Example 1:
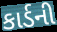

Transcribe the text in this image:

કાર્ડની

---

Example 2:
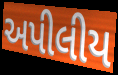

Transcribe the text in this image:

અપીલીય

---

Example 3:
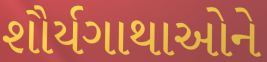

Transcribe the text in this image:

શૌર્યગાથાઓને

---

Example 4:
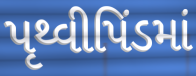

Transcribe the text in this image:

પૃથ્વીપિંડમાં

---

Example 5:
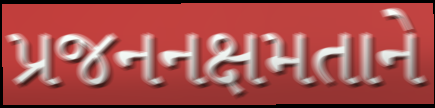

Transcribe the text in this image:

પ્રજનનક્ષમતાને